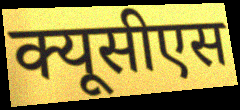
क्यूसीएस